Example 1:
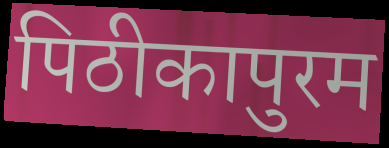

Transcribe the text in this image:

पिठीकापुरम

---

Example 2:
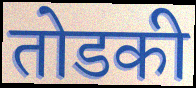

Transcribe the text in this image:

तोडकी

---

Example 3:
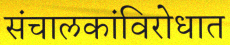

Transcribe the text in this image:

संचालकांविरोधात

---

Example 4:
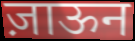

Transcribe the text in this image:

ज़ाऊन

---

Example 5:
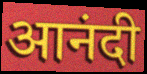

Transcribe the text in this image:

आनंदी